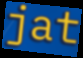
jat